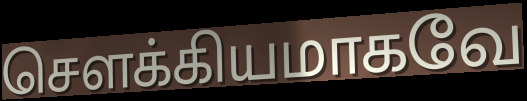
சௌக்கியமாகவே